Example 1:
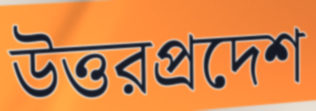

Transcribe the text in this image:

উত্তরপ্রদেশ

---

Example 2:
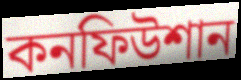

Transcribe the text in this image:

কনফিউশান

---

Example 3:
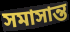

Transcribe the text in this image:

সমাসান্ত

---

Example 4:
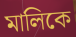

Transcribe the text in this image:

মালিকে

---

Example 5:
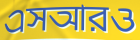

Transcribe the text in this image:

এসআরও